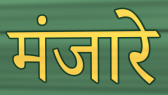
मंजारे